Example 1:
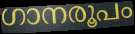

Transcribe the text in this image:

ഗാനരൂപം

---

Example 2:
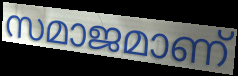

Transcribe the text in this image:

സമാജമാണ്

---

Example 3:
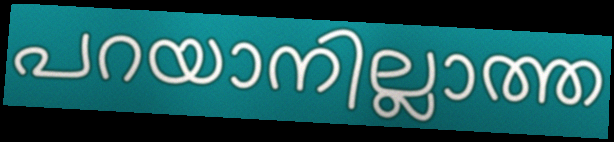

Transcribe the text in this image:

പറയാനില്ലാത്ത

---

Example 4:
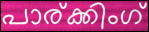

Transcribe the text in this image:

പാര്ക്കിംഗ്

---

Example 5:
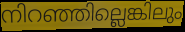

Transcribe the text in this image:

നിറഞ്ഞില്ലെങ്കിലും